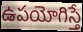
ఉపయోగిస్తే